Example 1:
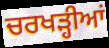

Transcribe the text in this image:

ਚਰਖੜ੍ਹੀਆਂ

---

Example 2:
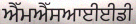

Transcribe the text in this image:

ਐੱਮਐੱਸਆਈਈਡੀ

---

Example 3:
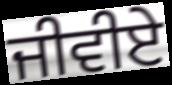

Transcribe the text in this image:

ਜੀਵੀਏ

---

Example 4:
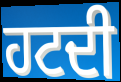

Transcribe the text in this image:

ਹਟਦੀ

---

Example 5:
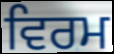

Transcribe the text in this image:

ਵਿਰਮ